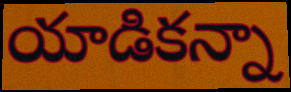
యాడికన్నా